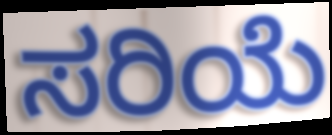
ಸರಿಯೆ